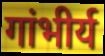
गांभीर्य